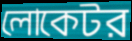
লোকেটর